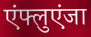
एंफ्लुएंजा